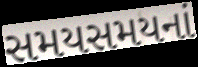
સમયસમયનાં